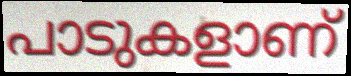
പാടുകളാണ്